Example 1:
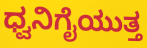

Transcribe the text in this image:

ಧ್ವನಿಗೈಯುತ್ತ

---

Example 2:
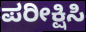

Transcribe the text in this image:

ಪರೀಕ್ಷಿಸಿ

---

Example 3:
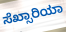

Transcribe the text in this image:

ಸೆಖ್ಸಾರಿಯಾ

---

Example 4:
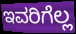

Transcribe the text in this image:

ಇವರಿಗೆಲ್ಲ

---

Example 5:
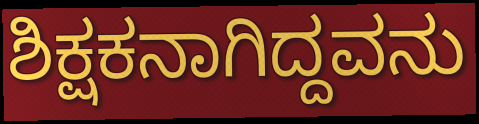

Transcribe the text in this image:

ಶಿಕ್ಷಕನಾಗಿದ್ದವನು